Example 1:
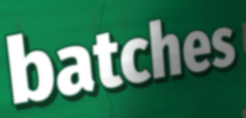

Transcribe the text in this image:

batches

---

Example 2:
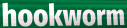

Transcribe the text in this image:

hookworm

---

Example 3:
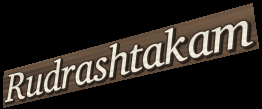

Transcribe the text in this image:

Rudrashtakam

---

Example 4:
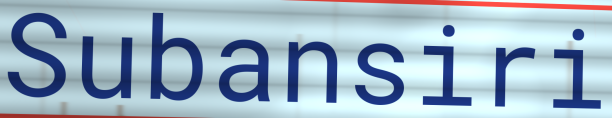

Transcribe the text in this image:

Subansiri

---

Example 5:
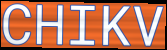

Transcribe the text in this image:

CHIKV